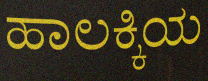
ಹಾಲಕ್ಕಿಯ